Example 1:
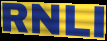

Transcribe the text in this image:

RNLI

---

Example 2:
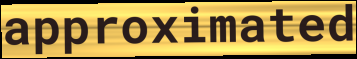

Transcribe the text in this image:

approximated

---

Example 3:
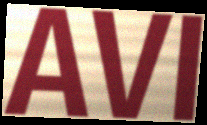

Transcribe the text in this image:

AVI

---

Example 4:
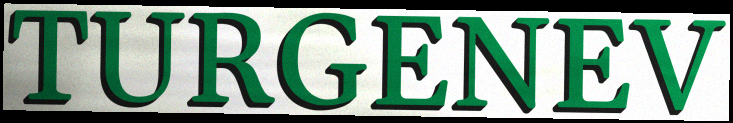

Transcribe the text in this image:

TURGENEV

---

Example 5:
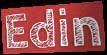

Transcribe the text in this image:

Edin